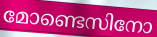
മോണ്ടെസിനോ